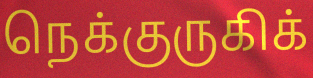
நெக்குருகிக்